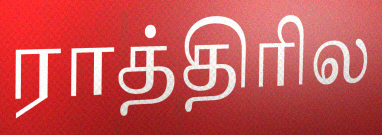
ராத்திரில